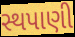
સ્થપાણી